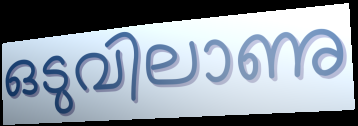
ഒടുവിലാണു